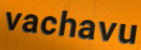
vachavu